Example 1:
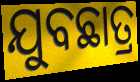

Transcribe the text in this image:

ଯୁବଛାତ୍ର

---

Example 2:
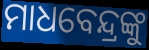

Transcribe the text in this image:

ମାଧବେନ୍ଦ୍ରଙ୍କୁ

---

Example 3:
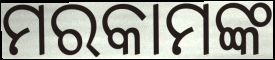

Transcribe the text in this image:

ମରକାମଙ୍କ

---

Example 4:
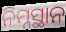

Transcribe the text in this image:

ନିମ୍ନସ୍ଥାନ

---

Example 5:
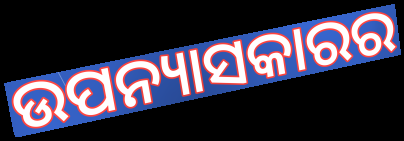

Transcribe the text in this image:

ଉପନ୍ୟାସକାରର